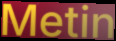
Metin